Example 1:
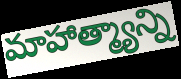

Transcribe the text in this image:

మాహాత్మ్యాన్ని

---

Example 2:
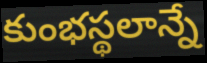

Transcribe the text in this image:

కుంభస్థలాన్నే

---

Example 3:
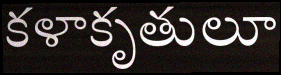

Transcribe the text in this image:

కళాకృతులూ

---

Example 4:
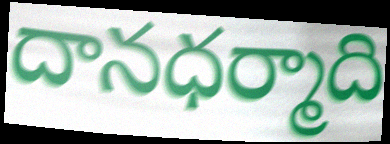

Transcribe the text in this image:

దానధర్మాది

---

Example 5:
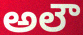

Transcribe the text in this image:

అలౌ